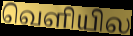
வெளியில